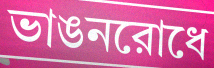
ভাঙনরোধে